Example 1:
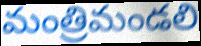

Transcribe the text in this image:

మంత్రిమండలి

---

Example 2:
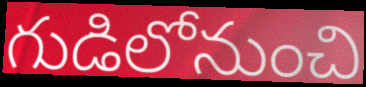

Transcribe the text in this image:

గుడిలోనుంచి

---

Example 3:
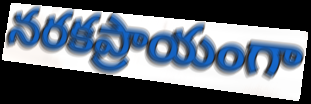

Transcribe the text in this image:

నరకప్రాయంగా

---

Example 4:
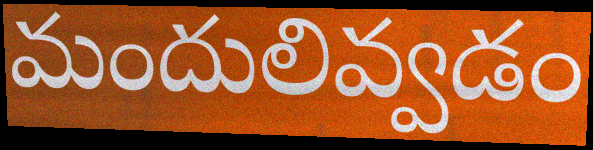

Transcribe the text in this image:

మందులివ్వడం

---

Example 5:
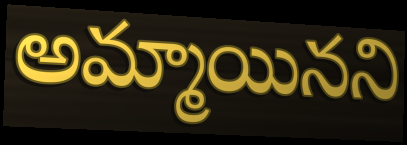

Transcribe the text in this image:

అమ్మాయినని